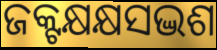
ଜକ୍ଟକ୍ଷକ୍ଷସଦ୍ଭଶ